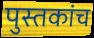
पुस्तकांच